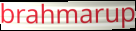
brahmarup